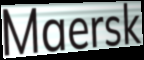
Maersk